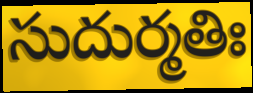
సుదుర్మతిః